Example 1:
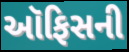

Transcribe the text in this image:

ઑફિસની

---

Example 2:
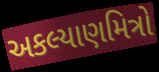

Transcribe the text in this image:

અકલ્યાણમિત્રો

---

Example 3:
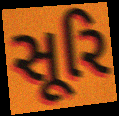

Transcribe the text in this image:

સૂરિ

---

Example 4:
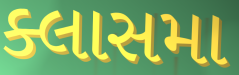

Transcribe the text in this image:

ક્લાસમા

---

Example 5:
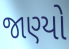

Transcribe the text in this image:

જાણ્યો